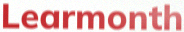
Learmonth